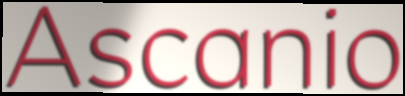
Ascanio